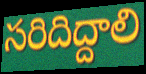
సరిదిద్దాలి